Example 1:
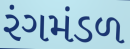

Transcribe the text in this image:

રંગમંડળ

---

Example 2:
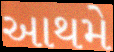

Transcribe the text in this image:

આથમે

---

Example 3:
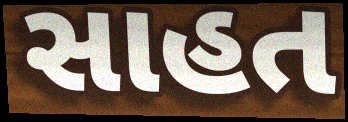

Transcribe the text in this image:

સાહત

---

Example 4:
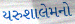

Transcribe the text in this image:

યરુશાલેમનો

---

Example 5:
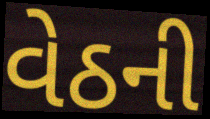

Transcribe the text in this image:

વેઠની